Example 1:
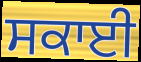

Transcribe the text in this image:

ਸਕਾਈ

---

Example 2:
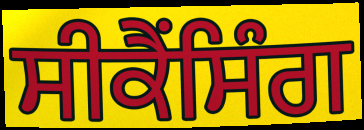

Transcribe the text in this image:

ਸੀਕੈਂਸਿੰਗ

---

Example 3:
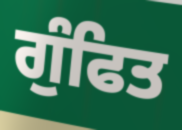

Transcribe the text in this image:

ਗੁੰਫਿਤ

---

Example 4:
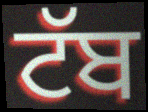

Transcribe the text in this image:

ਟੱਬ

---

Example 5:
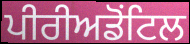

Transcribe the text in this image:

ਪੀਰੀਅਡੋਂਟਿਲ